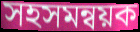
সহসমন্বয়ক